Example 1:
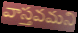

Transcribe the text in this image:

వాస్తవమని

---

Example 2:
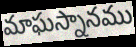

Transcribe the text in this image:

మాఘస్నానము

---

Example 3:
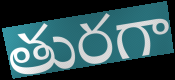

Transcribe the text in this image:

తురగా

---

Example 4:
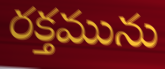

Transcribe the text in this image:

రక్తమును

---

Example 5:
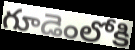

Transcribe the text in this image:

గూడెంలోకి